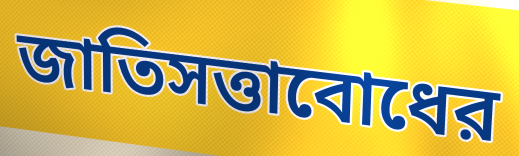
জাতিসত্তাবোধের